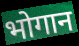
भोगान